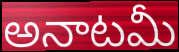
అనాటమీ